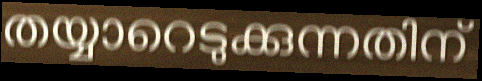
തയ്യാറെടുക്കുന്നതിന്